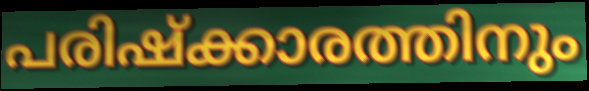
പരിഷ്ക്കാരത്തിനും